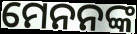
ମେନନଙ୍କ